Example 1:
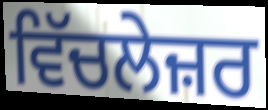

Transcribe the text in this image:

ਵਿੱਚਲੇਜ਼ਰ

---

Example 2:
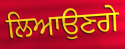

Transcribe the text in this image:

ਲਿਆਉਣਗੇ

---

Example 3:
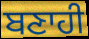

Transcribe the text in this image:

ਬਣਾਹੀ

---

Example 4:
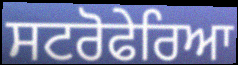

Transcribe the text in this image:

ਸਟਰੋਫੇਰਿਆ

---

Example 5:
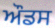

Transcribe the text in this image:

ਔਡਸ